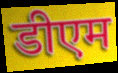
डीएम